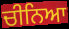
ਚੀਨਿਆ